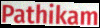
Pathikam